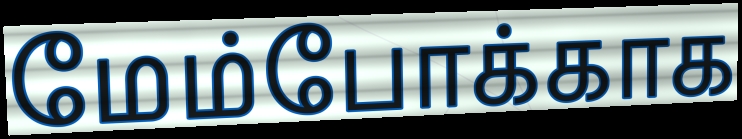
மேம்போக்காக